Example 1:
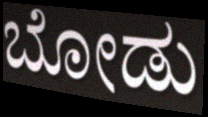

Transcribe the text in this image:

ಬೋಡು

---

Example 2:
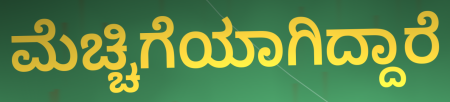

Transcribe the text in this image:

ಮೆಚ್ಚಿಗೆಯಾಗಿದ್ದಾರೆ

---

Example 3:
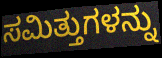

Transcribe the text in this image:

ಸಮಿತ್ತುಗಳನ್ನು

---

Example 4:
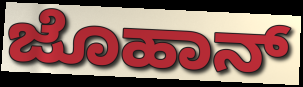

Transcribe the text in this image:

ಜೊಹಾನ್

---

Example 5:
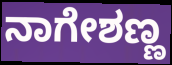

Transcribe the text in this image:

ನಾಗೇಶಣ್ಣ